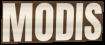
MODIS